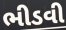
ભીડવી